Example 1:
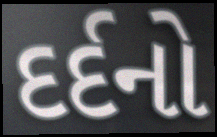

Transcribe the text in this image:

દર્દનો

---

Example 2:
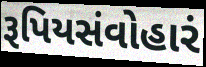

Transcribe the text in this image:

રૂપિયસંવોહારં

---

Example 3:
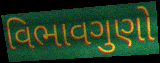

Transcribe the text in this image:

વિભાવગુણો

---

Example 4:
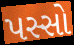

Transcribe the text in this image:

પસ્સો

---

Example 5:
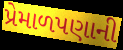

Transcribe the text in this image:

પ્રેમાળપણાની